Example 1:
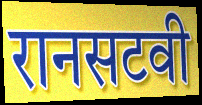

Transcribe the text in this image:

रानसटवी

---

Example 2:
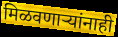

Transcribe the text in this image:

मिळवणाऱ्यांनाही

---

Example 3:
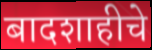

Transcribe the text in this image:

बादशाहीचे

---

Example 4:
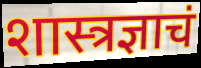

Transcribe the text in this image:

शास्त्रज्ञाचं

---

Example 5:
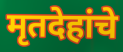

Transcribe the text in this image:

मृतदेहांचे